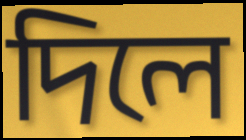
দিলে